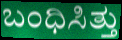
ಬಂಧಿಸಿತ್ತು